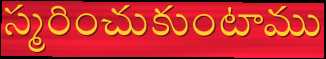
స్మరించుకుంటాము